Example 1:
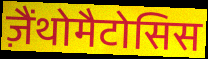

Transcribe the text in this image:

ज़ैंथोमैटोसिस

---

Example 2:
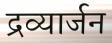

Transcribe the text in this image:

द्रव्यार्जन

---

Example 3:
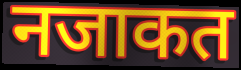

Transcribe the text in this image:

नजाकत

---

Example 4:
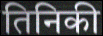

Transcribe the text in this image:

तिनिकी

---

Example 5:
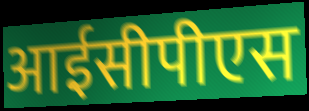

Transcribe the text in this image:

आईसीपीएस